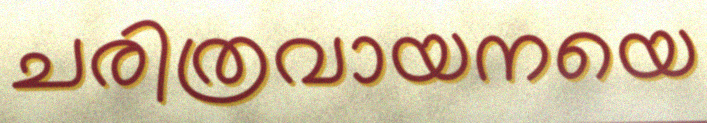
ചരിത്രവായനയെ